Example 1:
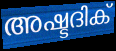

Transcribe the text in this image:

അഷ്ടദിക്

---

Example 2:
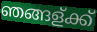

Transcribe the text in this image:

ഞങ്ങള്ക്ക്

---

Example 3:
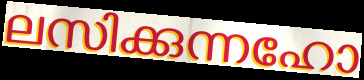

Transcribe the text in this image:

ലസിക്കുന്നഹോ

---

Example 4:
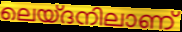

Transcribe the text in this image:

ലെയ്ദനിലാണ്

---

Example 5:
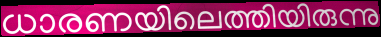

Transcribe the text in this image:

ധാരണയിലെത്തിയിരുന്നു